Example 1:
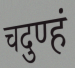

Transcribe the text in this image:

चदुण्हं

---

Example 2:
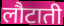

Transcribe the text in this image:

लौटाती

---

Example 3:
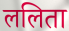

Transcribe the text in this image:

ललिता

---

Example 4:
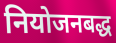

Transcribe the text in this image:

नियोजनबद्ध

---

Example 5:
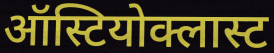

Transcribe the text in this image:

ऑस्टियोक्लास्ट